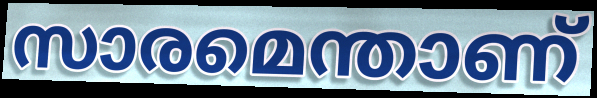
സാരമെന്താണ്